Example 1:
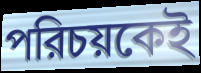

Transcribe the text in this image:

পরিচয়কেই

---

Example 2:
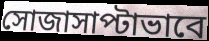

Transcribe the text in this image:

সোজাসাপ্টাভাবে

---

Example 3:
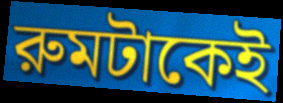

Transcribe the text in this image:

রুমটাকেই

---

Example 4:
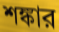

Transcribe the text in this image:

শঙ্কার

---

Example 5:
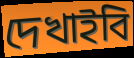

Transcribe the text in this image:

দেখাইবি